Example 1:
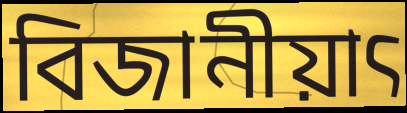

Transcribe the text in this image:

বিজানীয়াৎ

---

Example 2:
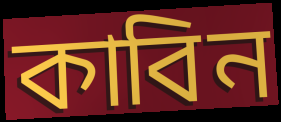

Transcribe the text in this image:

কাবিন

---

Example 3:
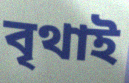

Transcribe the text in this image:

বৃথাই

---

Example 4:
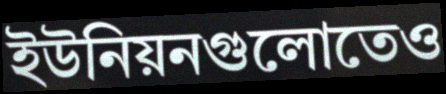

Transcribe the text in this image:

ইউনিয়নগুলোতেও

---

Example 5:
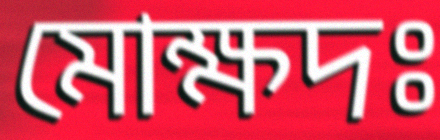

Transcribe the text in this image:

মোক্ষদঃ